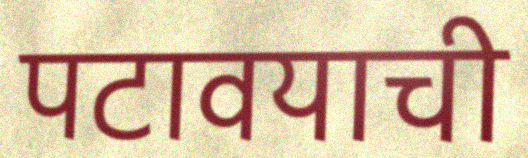
पटावयाची